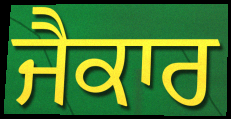
ਜੈਕਾਰ